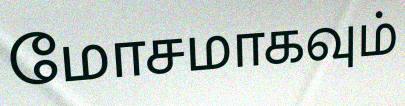
மோசமாகவும்